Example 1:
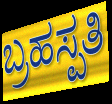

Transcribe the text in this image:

ಬ್ರಹಸ್ಪತಿ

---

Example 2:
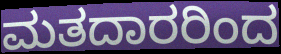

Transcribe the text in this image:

ಮತದಾರರಿಂದ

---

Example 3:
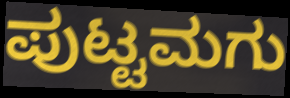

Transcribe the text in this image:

ಪುಟ್ಟಮಗು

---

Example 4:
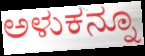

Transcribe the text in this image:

ಅಳುಕನ್ನೂ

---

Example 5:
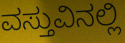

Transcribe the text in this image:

ವಸ್ತುವಿನಲ್ಲಿ